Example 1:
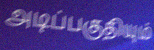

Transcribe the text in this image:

அடிப்பகுதியும்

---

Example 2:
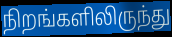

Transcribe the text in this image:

நிறங்களிலிருந்து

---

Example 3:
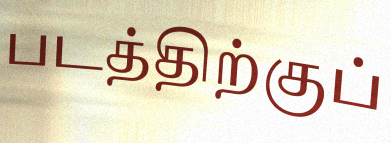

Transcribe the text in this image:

படத்திற்குப்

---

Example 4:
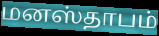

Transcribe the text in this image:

மனஸ்தாபம்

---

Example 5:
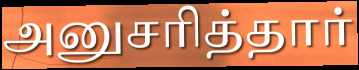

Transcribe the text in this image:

அனுசரித்தார்